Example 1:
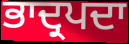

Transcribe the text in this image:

ਭਾਦ੍ਰਪਦਾ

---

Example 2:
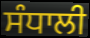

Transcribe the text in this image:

ਸੰਧਾਲੀ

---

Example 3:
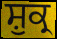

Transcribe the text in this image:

ਸ਼ੁਕ੍ਰ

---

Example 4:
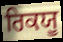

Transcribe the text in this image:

ਰਿਕਯੂ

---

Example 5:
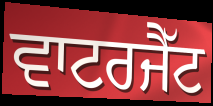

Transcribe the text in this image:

ਵਾਟਰਜੈੱਟ